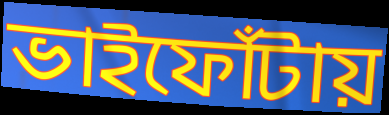
ভাইফোঁটায়